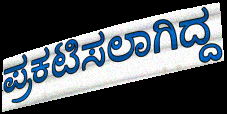
ಪ್ರಕಟಿಸಲಾಗಿದ್ದ